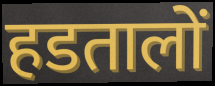
हडतालों